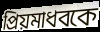
প্রিয়মাধবকে